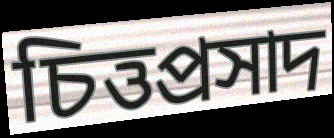
চিত্তপ্রসাদ